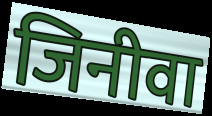
जिनीवा